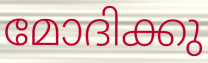
മോദിക്കു